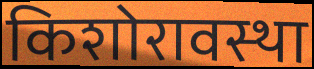
किशोरावस्था